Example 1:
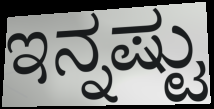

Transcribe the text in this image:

ಇನ್ನಷ್ಟು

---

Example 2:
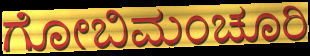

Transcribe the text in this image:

ಗೋಬಿಮಂಚೂರಿ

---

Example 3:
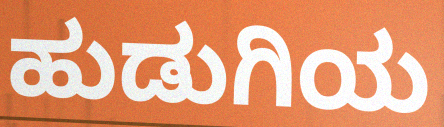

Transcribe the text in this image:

ಹುಡುಗಿಯ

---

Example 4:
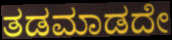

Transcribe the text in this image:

ತಡಮಾಡದೇ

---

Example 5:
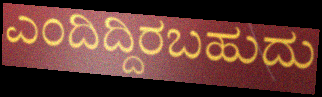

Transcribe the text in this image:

ಎಂದಿದ್ದಿರಬಹುದು